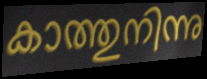
കാത്തുനിന്നു